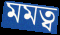
মমত্ব